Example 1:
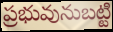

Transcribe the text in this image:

ప్రభువునుబట్టి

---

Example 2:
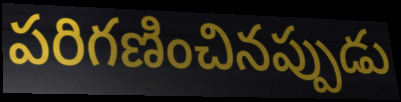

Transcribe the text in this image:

పరిగణించినప్పుడు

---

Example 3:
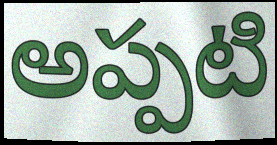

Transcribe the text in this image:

అప్పటి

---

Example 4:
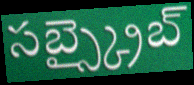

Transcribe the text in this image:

సబ్స్క్రైబ్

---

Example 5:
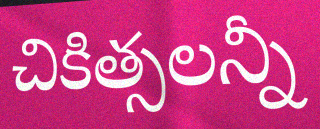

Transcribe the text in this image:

చికిత్సలన్నీ